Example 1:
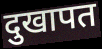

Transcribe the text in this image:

दुखापत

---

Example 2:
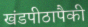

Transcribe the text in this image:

खंडपीठापैकी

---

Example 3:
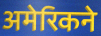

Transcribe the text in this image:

अमेरिकने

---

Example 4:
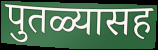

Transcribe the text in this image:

पुतळ्यासह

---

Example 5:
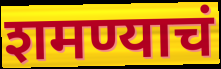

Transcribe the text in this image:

शमण्याचं